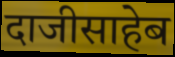
दाजीसाहेब